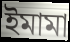
ইমামা